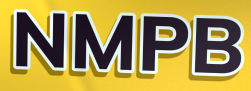
NMPB